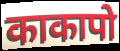
काकापो